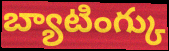
బ్యాటింగ్కు